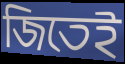
জিতেই